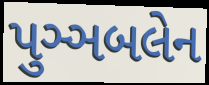
પુઞ્ઞબલેન